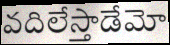
వదిలేస్తాడేమో